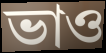
ভাও